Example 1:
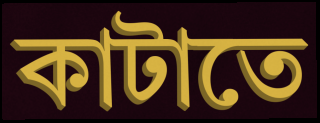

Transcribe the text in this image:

কাটাতে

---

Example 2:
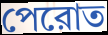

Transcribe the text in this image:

পেরোত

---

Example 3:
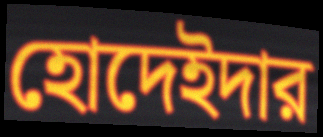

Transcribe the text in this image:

হোদেইদার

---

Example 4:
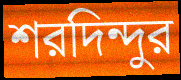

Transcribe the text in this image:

শরদিন্দুর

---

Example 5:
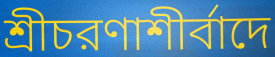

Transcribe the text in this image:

শ্রীচরণাশীর্বাদে